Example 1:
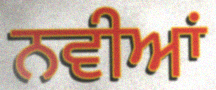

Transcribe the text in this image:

ਨਵੀਆਂ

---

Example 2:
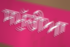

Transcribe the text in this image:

ਸਮੁੱਚੀਆ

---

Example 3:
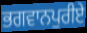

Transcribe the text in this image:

ਭਗਵਾਨਪੁਰੀਏ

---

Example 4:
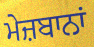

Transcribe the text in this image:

ਮੇਜ਼ਬਾਨਾਂ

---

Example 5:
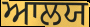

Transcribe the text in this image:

ਆਲਯ